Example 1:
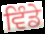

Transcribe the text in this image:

ਵਿੰਡੇ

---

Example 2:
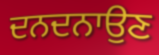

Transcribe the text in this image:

ਦਨਦਨਾਉਣ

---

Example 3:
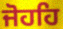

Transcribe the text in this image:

ਜੋਹਹਿ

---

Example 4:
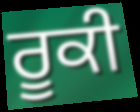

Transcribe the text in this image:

ਰੂਕੀ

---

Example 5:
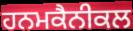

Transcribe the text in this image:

ਹਨਮਕੈਨੀਕਲ